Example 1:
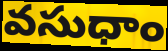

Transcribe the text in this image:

వసుధాం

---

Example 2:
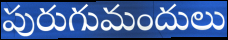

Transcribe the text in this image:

పురుగుమందులు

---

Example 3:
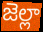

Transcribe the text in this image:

జెల్లా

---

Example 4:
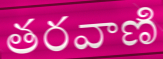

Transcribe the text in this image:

తరవాణి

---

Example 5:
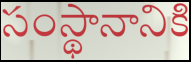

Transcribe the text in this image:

సంస్థానానికి